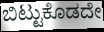
ಬಿಟ್ಟುಕೊಡದೇ